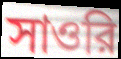
সাওরি